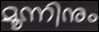
മൂന്നിനും